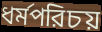
ধর্মপরিচয়